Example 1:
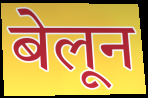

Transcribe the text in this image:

बेलून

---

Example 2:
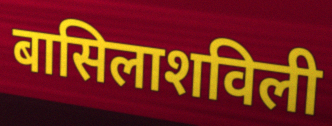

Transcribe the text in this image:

बासिलाशविली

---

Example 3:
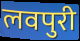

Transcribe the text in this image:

लवपुरी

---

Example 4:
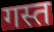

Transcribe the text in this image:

गस्त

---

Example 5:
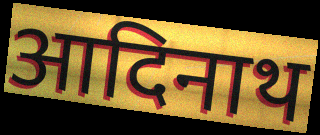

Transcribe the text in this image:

आदिनाथ